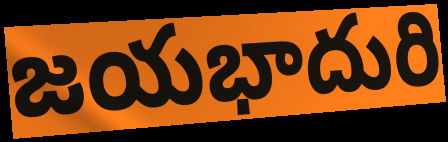
జయభాదురి